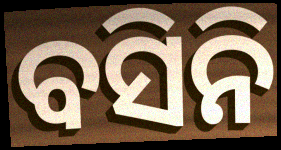
ବସିନି